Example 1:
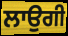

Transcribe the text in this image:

ਲਾਉਗੀ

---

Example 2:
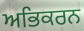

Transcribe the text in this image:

ਅਭਿਕਰਨ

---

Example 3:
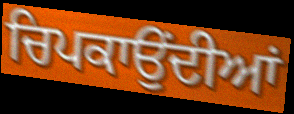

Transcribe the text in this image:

ਚਿਪਕਾਉਂਦੀਆਂ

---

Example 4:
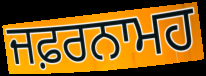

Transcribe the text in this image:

ਜਫ਼ਰਨਾਮਹ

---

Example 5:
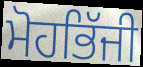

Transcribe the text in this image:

ਮੋਹਭਿੱਜੀ